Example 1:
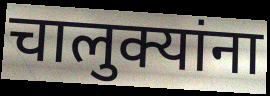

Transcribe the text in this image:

चालुक्यांना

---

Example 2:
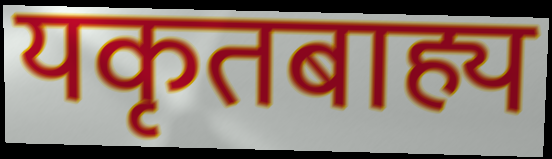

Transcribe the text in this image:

यकृतबाह्य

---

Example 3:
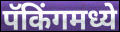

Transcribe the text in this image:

पॅकिंगमध्ये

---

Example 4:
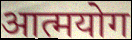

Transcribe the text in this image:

आत्मयोग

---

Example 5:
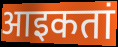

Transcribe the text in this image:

आइकतां